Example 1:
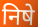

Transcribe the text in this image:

निषे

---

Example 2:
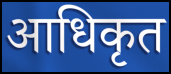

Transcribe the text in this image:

आधिकृत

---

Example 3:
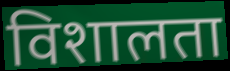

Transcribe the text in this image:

विशालता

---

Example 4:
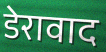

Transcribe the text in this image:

डेरावाद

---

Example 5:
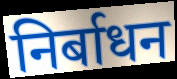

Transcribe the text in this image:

निर्बाधन